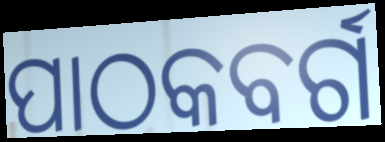
ପାଠକବର୍ଗ